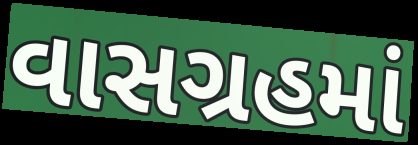
વાસગ્રહમાં